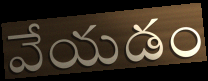
వేయడం